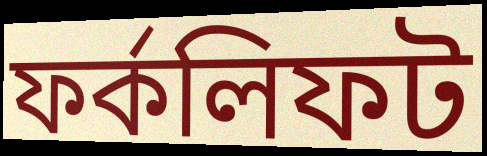
ফর্কলিফট